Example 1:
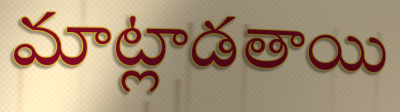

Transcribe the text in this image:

మాట్లాడతాయి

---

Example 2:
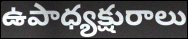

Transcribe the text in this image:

ఉపాధ్యక్షురాలు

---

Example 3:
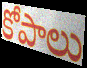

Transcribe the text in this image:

కోపాలు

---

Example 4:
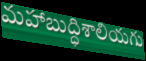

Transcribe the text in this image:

మహాబుద్ధిశాలియగు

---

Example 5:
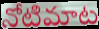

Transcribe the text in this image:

నోటిమాట